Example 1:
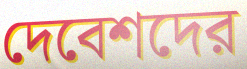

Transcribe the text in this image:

দেবেশদের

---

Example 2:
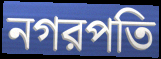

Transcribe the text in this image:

নগরপতি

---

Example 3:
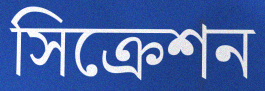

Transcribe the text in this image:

সিক্রেশন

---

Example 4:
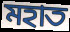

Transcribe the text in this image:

মহাত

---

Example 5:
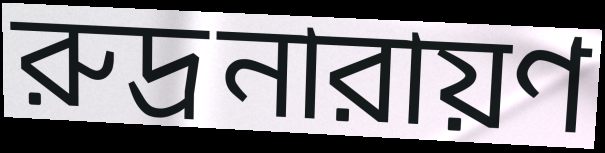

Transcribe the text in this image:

রুদ্রনারায়ণ